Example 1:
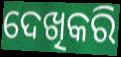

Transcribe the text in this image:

ଦେଖିକରି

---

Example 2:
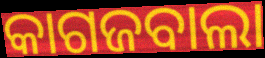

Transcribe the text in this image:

କାଗଜବାଲା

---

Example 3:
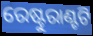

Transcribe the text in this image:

ରେଷ୍ଟୁରାଣ୍ଟଟି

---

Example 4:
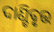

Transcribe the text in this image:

ଦାଣ୍ଡିବୃତ୍ତ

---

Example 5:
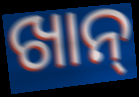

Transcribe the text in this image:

ଖାନ୍